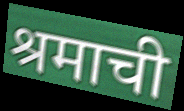
श्रमाची